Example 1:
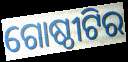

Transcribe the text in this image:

ଗୋଷ୍ଠୀଟିର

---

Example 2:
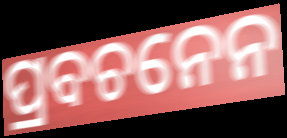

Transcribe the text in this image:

ପ୍ରବଚନେନ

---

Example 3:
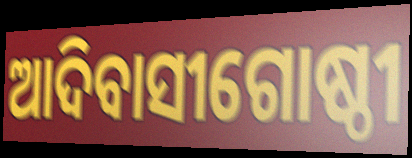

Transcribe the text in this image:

ଆଦିବାସୀଗୋଷ୍ଠୀ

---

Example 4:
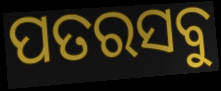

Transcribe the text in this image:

ପତରସବୁ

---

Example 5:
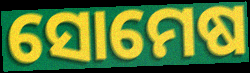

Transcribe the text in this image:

ସୋମେଷ